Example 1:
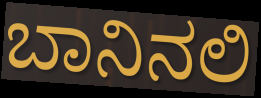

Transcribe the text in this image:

ಬಾನಿನಲಿ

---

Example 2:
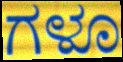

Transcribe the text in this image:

ಗಳೂ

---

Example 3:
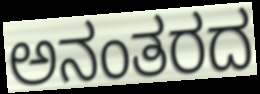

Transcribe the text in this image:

ಅನಂತರದ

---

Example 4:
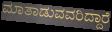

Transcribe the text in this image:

ಮಾತಾಡುವವರಿದ್ದಾರೆ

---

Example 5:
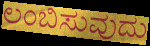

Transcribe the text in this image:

ಲಂಬಿಸುವುದು